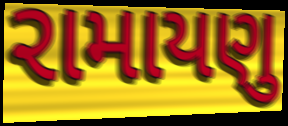
રામાયણુ